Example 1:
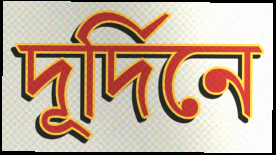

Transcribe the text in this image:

দূর্দিনে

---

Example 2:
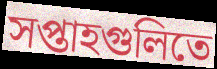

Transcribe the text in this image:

সপ্তাহগুলিতে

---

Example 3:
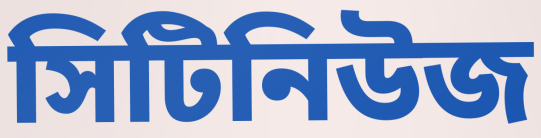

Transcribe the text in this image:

সিটিনিউজ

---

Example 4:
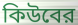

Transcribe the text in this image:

কিউবের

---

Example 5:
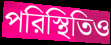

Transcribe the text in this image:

পরিস্থিতিও